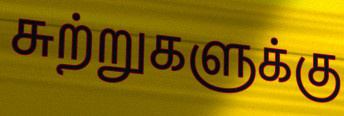
சுற்றுகளுக்கு